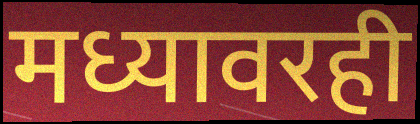
मध्यावरही